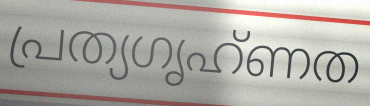
പ്രത്യഗൃഹ്ണത